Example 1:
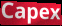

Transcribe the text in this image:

Capex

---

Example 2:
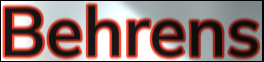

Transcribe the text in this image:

Behrens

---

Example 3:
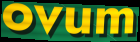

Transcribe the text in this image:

ovum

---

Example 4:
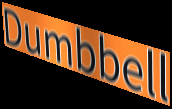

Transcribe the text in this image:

Dumbbell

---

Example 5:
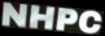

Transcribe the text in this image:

NHPC